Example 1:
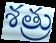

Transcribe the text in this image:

శత్రు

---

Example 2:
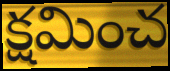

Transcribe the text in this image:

క్షమించ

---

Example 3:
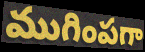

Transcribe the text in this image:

ముగింపగా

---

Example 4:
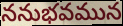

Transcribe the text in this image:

ననుభవమున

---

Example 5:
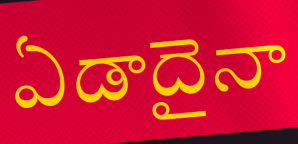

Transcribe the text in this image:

ఏడాదైనా